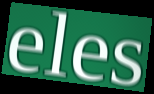
eles